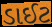
ડાઈટ